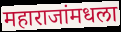
महाराजांमधला